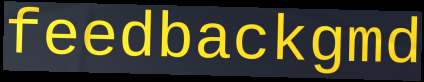
feedbackgmd